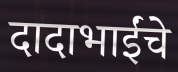
दादाभाईंचे